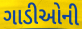
ગાડીઓની